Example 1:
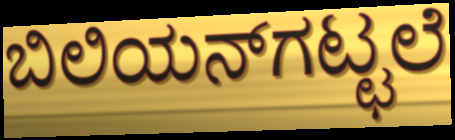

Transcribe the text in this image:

ಬಿಲಿಯನ್‌ಗಟ್ಟಲೆ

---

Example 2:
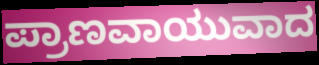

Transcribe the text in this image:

ಪ್ರಾಣವಾಯುವಾದ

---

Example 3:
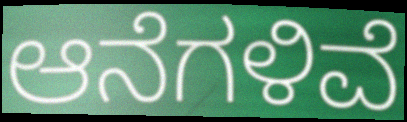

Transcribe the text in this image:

ಆನೆಗಳಿವೆ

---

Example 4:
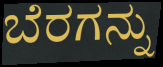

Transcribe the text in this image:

ಬೆರಗನ್ನು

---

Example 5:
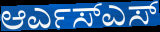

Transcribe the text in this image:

ಆರ್ಎಸ್ಎಸ್